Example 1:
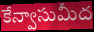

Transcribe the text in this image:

కేన్వాసుమీద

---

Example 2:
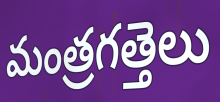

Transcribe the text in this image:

మంత్రగత్తెలు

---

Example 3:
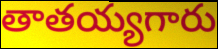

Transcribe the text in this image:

తాతయ్యగారు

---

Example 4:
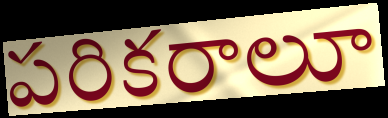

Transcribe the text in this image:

పరికరాలూ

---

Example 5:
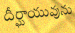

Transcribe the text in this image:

దీర్ఘాయువును